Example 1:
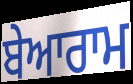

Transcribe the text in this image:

ਬੇਆਰਾਮ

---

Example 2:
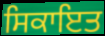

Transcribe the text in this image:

ਸਿਕਾਇਤ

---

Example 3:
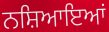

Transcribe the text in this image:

ਨਸ਼ਿਆਇਆਂ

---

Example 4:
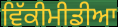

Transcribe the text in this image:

ਵਿੱਕੀਮੀਡੀਆ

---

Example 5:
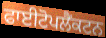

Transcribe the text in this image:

ਫਾਈਟੋਪਲੈਂਕਟਨ